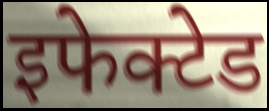
इफेक्टेड